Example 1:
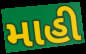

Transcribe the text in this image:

માહી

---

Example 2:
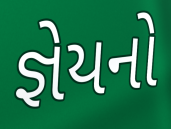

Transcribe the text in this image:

જ્ઞેયનો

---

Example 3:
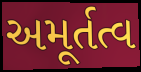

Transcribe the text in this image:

અમૂર્તત્વ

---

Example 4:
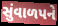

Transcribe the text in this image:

સુંવાળપને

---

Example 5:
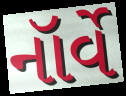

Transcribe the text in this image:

નૉર્વે